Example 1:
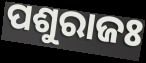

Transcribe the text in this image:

ପଶୁରାଜଃ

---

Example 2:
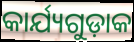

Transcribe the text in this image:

କାର୍ଯ୍ୟଗୁଡ଼ାକ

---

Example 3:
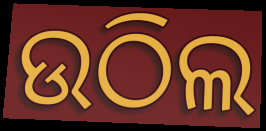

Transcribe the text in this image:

ଉଠିଲ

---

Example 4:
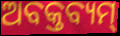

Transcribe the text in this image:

ଅବକ୍ତବ୍ୟମ୍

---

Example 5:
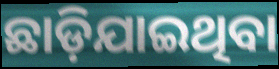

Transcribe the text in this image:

ଛାଡ଼ିଯାଇଥିବା